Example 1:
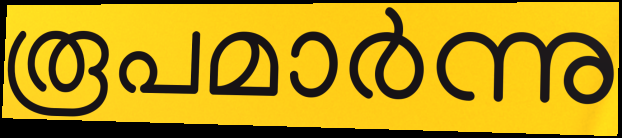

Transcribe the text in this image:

രൂപമാർന്നു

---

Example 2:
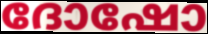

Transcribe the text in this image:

ദോഷോ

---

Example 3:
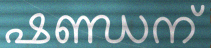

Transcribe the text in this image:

ഷണ്ഡന്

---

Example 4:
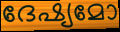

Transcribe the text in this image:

ദേഷ്യമോ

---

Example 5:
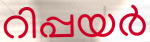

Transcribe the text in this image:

റിപ്പയർ